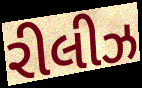
રીલીઝ